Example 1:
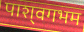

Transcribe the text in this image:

पाश्वगभम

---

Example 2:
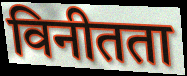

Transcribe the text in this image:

विनीतता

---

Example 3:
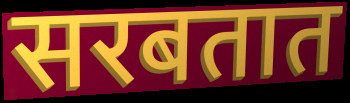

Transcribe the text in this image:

सरबतात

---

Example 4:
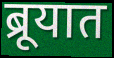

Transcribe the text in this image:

ब्रूयात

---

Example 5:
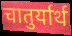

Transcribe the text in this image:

चातुर्यार्थ